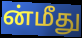
ன்மீது